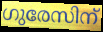
ഗുരേസിന്